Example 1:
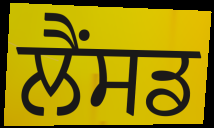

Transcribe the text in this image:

ਲੈਂਸਡ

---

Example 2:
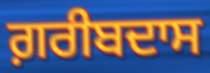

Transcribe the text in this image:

ਗ਼ਰੀਬਦਾਸ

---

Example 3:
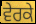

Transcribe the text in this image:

ਵੇਰਕੇ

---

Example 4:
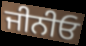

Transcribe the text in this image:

ਜੀਨੀਓ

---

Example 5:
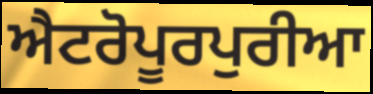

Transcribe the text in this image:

ਐਟਰੋਪੂਰਪੁਰੀਆ